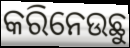
କରିନେଉଛୁ